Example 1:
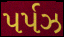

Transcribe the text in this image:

પર્પઝ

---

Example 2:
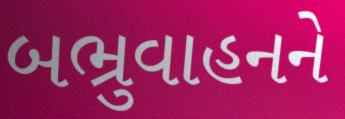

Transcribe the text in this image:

બભ્રુવાહનને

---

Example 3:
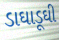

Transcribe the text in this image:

ડાઘાડૂઘી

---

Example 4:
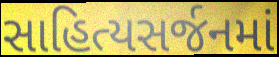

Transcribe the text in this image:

સાહિત્યસર્જનમાં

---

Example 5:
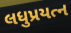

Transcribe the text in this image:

લધુપ્રયત્ન